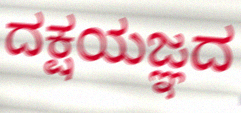
ದಕ್ಷಯಜ್ಞದ